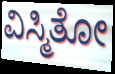
ವಿಸ್ಮಿತೋ